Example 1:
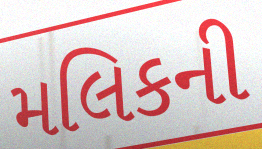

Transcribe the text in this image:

મલિકની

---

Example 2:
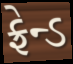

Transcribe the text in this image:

ફ્રેન્ડ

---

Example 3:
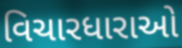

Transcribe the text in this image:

વિચારધારાઓ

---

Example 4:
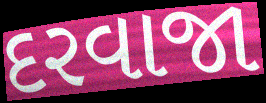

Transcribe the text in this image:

દરવાજા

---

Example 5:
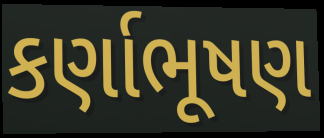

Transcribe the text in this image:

કર્ણાભૂષણ